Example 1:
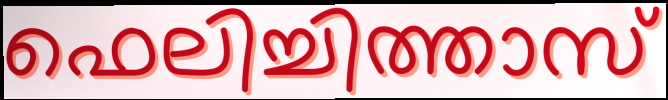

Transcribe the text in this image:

ഫെലിച്ചിത്താസ്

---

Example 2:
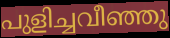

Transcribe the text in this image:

പുളിച്ചവീഞ്ഞു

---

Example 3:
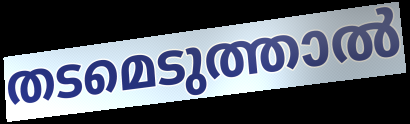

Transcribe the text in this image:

തടമെടുത്താൽ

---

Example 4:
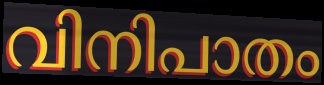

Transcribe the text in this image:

വിനിപാതം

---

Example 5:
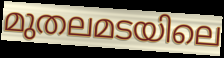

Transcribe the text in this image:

മുതലമടയിലെ